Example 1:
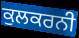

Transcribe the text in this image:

ਕੁਲਕਰਨੀ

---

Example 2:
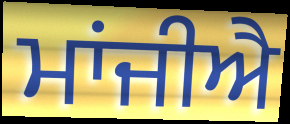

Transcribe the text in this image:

ਮਾਂਜੀਐ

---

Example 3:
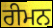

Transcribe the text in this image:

ਰੀਮਨ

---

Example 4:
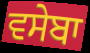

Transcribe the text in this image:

ਵਸੇਬਾ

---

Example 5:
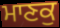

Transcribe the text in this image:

ਮਾਣਕੁ